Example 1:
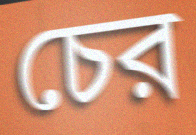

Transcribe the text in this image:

চের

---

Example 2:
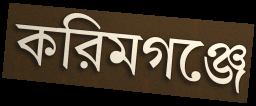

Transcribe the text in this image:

করিমগঞ্জে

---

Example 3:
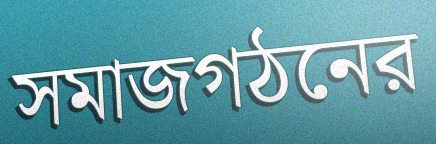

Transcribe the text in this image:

সমাজগঠনের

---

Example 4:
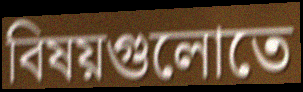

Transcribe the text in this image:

বিষয়গুলোতে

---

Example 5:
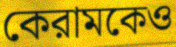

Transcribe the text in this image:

কেরামকেও